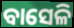
ବାସେଳି